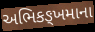
અભિકઙ્ખમાના